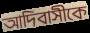
আদিবাসীকে